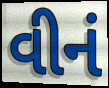
વીનં